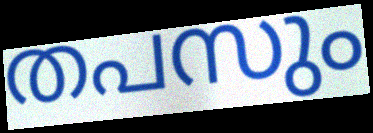
തപസും